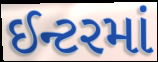
ઈન્ટરમાં